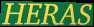
HERAS